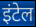
इंटेल